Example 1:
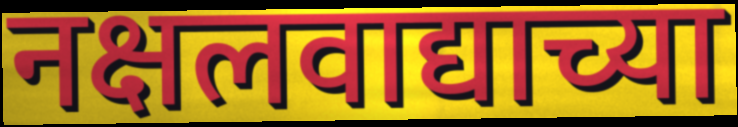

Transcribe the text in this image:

नक्षलवाद्याच्या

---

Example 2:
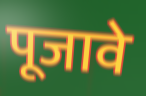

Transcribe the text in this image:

पूजावे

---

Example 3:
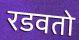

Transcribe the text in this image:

रडवतो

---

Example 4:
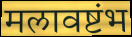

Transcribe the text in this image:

मलावष्टंभ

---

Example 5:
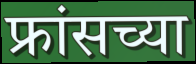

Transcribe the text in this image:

फ्रांसच्या